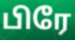
பிரே